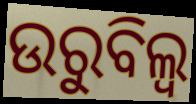
ଉରୁବିଲ୍ୱ